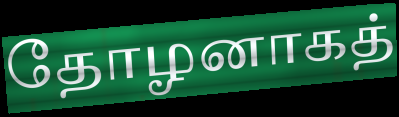
தோழனாகத்